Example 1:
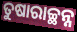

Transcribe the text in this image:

ତୁଷାରାଚ୍ଛନ୍ନ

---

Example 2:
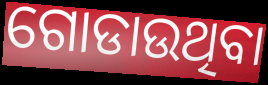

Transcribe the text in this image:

ଗୋଡାଉଥିବା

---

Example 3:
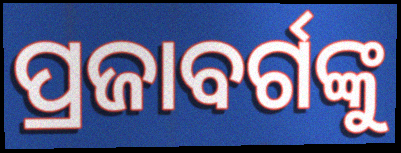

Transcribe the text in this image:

ପ୍ରଜାବର୍ଗଙ୍କୁ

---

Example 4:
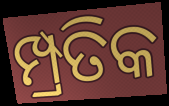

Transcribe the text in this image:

ମ୍ପ୍ରତିକ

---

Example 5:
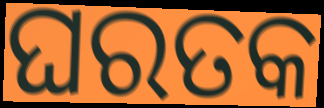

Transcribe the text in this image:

ଘରତକ